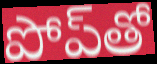
పోప్‌తో